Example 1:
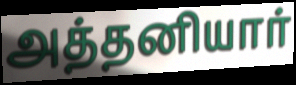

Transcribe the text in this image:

அத்தனியார்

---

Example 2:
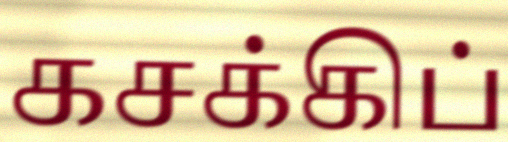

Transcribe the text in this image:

கசக்கிப்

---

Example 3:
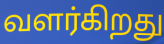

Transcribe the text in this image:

வளர்கிறது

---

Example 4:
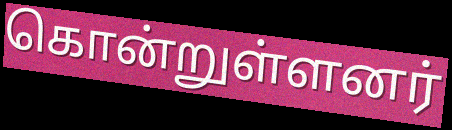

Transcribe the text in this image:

கொன்றுள்ளனர்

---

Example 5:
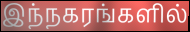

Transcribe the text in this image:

இந்நகரங்களில்